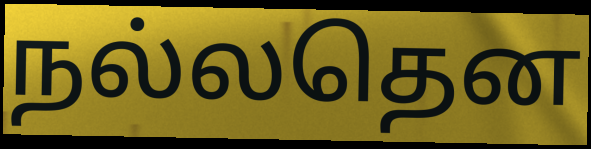
நல்லதென